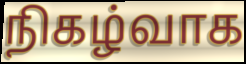
நிகழ்வாக